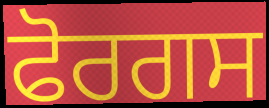
ਫੋਰਗਸ